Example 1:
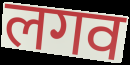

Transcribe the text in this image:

लगव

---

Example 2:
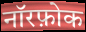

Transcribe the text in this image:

नॉरफ़ोक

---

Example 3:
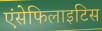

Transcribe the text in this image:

एंसेफिलाइटिस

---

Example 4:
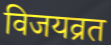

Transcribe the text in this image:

विजयव्रत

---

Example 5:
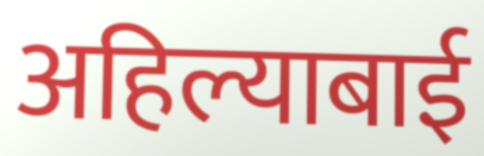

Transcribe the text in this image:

अहिल्याबाई